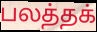
பலத்தக்